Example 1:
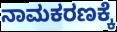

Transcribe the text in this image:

ನಾಮಕರಣಕ್ಕೆ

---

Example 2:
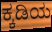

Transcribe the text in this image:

ಕ್ಕಡಿಯ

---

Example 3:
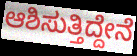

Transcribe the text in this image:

ಆಶಿಸುತ್ತಿದ್ದೇನೆ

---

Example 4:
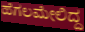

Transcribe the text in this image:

ಹೆಗಲಮೇಲಿದ್ದ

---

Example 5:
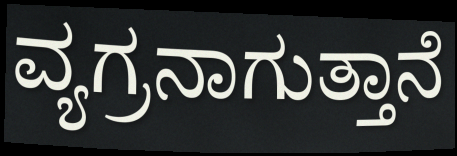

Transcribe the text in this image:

ವ್ಯಗ್ರನಾಗುತ್ತಾನೆ